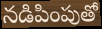
నడిపింపుతో